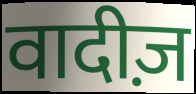
वादीज़